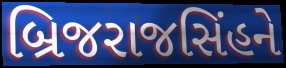
બ્રિજરાજસિંહને